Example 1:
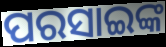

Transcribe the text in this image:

ପରସାଇଙ୍କ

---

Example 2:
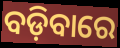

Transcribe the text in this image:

ବଡ଼ିବାରେ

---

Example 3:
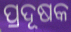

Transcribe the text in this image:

ପ୍ରଦୂଷକ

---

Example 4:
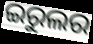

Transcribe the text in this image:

ଇରୁଲର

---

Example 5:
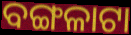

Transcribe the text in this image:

ବଙ୍ଗଳାଟା